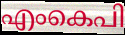
എംകെപി